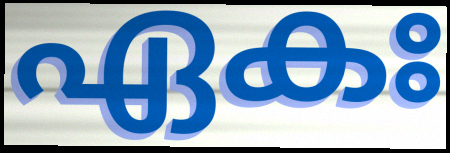
ഏകഃ